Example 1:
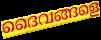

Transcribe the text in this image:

ദൈവങ്ങളെ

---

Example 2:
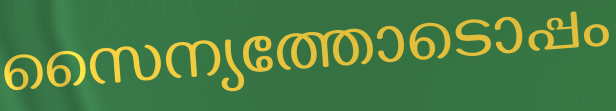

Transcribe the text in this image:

സൈന്യത്തോടൊപ്പം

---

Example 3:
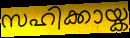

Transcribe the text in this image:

സഹിക്കായ്ക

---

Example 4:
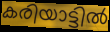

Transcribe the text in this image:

കരിയാട്ടിൽ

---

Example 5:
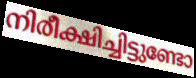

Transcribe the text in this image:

നിരീക്ഷിച്ചിട്ടുണ്ടോ